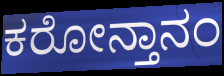
ಕರೋನ್ತಾನಂ